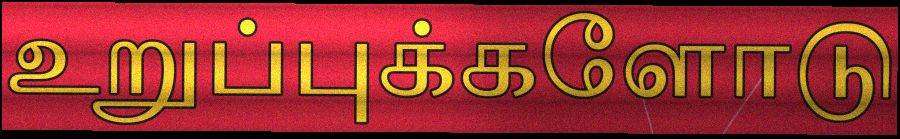
உறுப்புக்களோடு